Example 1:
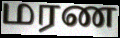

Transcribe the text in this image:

மரண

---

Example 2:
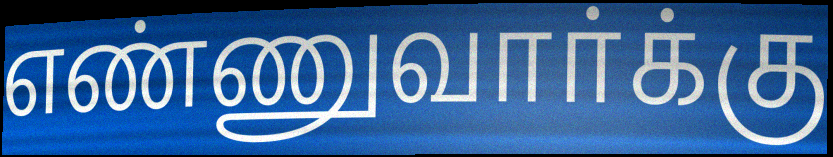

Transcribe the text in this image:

எண்ணுவார்க்கு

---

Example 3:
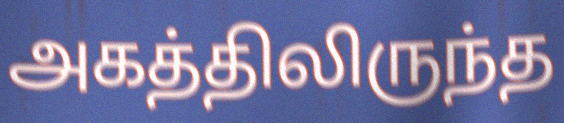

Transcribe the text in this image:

அகத்திலிருந்த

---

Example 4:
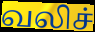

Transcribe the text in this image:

வலிச்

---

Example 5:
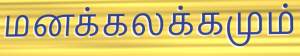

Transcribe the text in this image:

மனக்கலக்கமும்